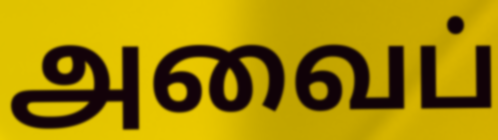
அவைப்